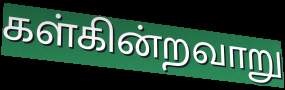
கள்கின்றவாறு